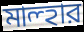
মাল্হার